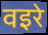
वइरे